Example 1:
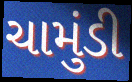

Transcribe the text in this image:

ચામુંડી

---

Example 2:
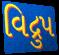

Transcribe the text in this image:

વિદ્રુપ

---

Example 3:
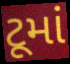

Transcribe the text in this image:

ટૂમાં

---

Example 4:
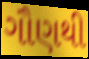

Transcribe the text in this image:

ગૌણથી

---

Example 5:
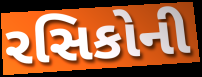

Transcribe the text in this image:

રસિકોની